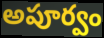
అపూర్వం